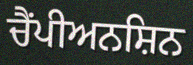
ਚੈਂਪੀਅਨਸ਼ਿਨ